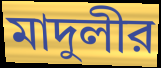
মাদুলীর